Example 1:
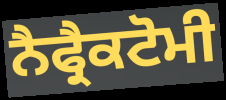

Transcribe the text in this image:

ਨੈਫ੍ਰੈਕਟੋਮੀ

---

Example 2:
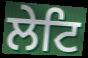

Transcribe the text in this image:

ਲੇਟਿ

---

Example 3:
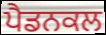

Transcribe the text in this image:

ਪੈਡਨਕਲ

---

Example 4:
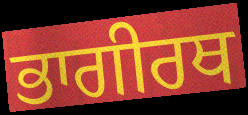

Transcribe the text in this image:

ਭਾਗੀਰਥ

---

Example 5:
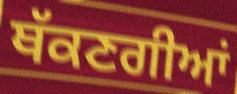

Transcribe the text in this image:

ਥੱਕਣਗੀਆਂ